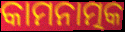
କାମନାତ୍ମକ